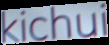
kichui